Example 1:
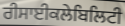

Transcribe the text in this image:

ਰੀਸਾਈਕਲੇਬਿਲਿਟੀ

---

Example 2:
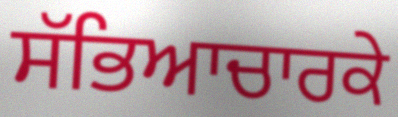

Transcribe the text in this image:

ਸੱਭਿਆਚਾਰਕੇ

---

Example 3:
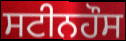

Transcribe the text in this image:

ਸਟੀਨਹੌਸ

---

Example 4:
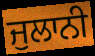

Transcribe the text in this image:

ਜੁਲਾਨੀ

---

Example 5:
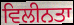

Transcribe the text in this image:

ਵਿਲੀਨਤਾ